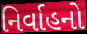
નિર્વાહનો